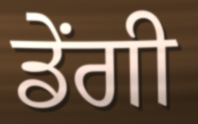
ਡੇਂਗੀ